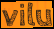
vilu